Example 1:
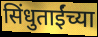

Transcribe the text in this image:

सिंधुताईंच्या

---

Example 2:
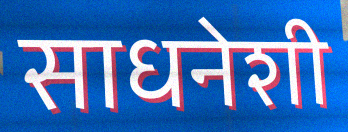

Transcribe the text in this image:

साधनेशी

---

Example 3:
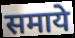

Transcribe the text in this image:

समाये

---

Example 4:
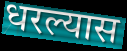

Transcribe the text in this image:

धरल्यास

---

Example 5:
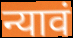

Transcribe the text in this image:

न्यावं